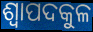
ଶ୍ୱାପଦକୁଳ